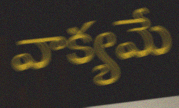
వాక్యమే